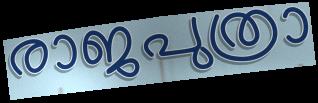
രാജപുത്രാ